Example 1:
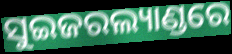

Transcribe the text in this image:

ସୁଇଜରଲ୍ୟାଣ୍ଡରେ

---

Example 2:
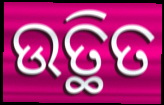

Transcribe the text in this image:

ଉତ୍ଥିତ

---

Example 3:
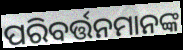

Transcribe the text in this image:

ପରିବର୍ତ୍ତନମାନଙ୍କ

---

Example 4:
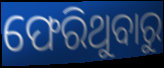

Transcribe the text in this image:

ଫେରିଥୁବାରୁ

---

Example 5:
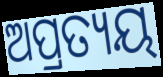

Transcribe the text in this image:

ଅପ୍ରତ୍ୟୟ